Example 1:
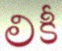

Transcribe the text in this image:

లికీ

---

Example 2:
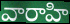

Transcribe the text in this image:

వారాహి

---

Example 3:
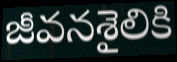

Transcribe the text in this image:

జీవనశైలికి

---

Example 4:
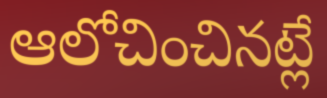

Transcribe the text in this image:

ఆలోచించినట్లే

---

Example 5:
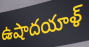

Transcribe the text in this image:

ఉషాదయాళ్